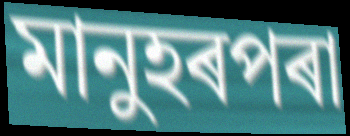
মানুহৰপৰা